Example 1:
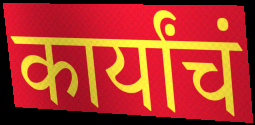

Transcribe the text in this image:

कार्यांचं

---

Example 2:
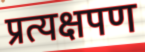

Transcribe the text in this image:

प्रत्यक्षपण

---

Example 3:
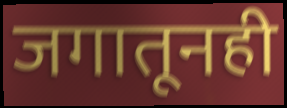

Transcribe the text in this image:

जगातूनही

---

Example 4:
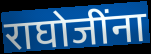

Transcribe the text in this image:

राघोजींना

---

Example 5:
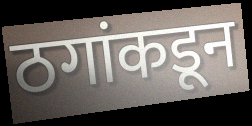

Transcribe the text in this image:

ठगांकडून